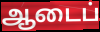
ஆடைப்